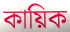
কায়িক